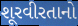
શૂરવીરતાનો